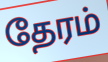
தேரம்